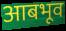
आबभूव